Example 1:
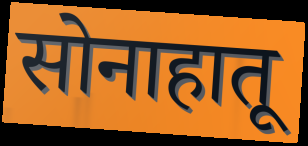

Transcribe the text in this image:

सोनाहातू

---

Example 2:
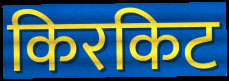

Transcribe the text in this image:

किरकिट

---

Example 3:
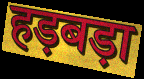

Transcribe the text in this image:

हड़बड़ा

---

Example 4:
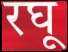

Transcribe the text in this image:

रघू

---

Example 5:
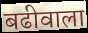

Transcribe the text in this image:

बढीवाला